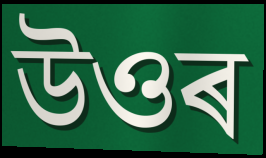
উওৰ